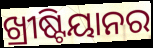
ଖ୍ରୀଷ୍ଟିୟାନର